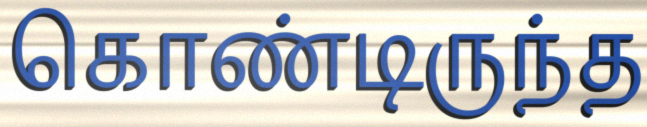
கொண்டிருந்த